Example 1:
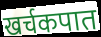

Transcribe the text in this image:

खर्चकपात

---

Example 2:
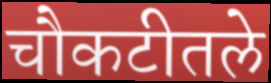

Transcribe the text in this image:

चौकटीतले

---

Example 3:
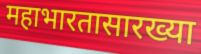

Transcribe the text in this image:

महाभारतासारख्या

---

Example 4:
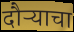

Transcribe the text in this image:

दौऱ्याचा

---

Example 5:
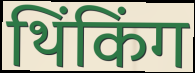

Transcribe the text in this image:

थिंकिंग